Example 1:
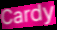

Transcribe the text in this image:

Cardy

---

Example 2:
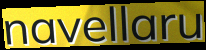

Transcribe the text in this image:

navellaru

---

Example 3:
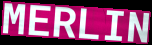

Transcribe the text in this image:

MERLIN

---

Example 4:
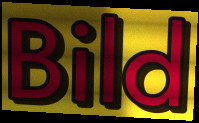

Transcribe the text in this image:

Bild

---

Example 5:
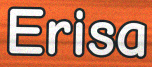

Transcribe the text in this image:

Erisa